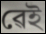
ৱেই